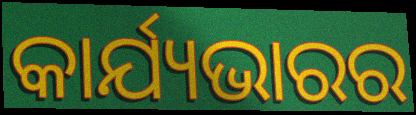
କାର୍ଯ୍ୟଭାରର